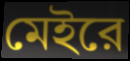
মেইরে